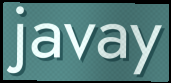
javay